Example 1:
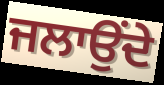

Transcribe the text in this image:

ਜਲਾਉਂਦੇ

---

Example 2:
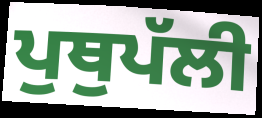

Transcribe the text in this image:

ਪੁਥੁਪੱਲੀ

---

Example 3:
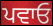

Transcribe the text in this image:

ਪਵਾਓ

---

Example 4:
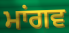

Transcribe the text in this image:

ਮਾਂਗਵ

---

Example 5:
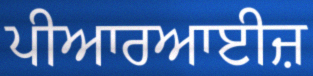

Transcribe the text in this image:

ਪੀਆਰਆਈਜ਼